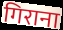
गिराना